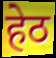
हेठ